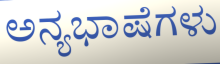
ಅನ್ಯಭಾಷೆಗಳು